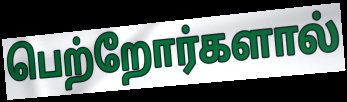
பெற்றோர்களால்